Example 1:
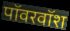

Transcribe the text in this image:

पॉवरवॉश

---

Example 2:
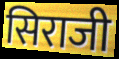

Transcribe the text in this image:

सिराजी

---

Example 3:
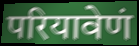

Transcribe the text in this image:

परियावेणं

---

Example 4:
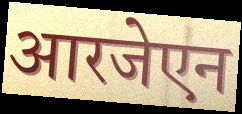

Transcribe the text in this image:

आरजेएन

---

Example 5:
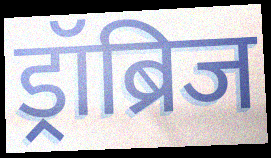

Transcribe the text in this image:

ड्रॉब्रिज